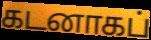
கடனாகப்